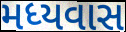
મધ્યવાસ